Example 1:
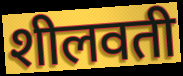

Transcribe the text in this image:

शीलवती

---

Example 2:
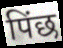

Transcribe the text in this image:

पिंछ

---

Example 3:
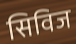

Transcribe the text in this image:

सिविज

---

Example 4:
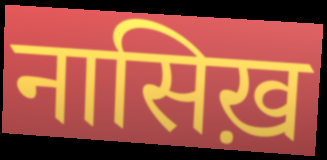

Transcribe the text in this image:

नासिख़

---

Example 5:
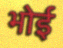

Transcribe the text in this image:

भोई